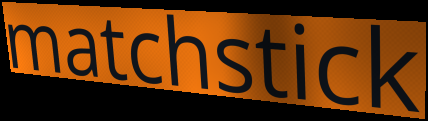
matchstick